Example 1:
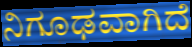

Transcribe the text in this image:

ನಿಗೂಢವಾಗಿದೆ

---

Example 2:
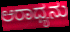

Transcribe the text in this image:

ಆರಾಧ್ಯನು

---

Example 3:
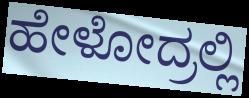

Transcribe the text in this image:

ಹೇಳೋದ್ರಲ್ಲಿ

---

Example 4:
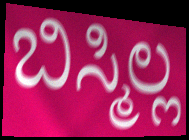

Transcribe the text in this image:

ಬಿಸ್ಮಿಲ್ಲ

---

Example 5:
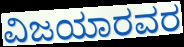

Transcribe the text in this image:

ವಿಜಯಾರವರ